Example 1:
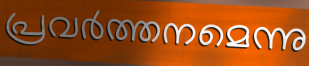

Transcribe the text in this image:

പ്രവർത്തനമെന്നു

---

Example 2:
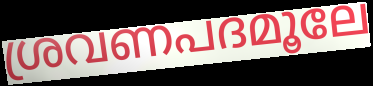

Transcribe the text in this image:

ശ്രവണപദമൂലേ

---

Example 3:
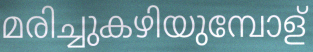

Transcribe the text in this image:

മരിച്ചുകഴിയുമ്പോള്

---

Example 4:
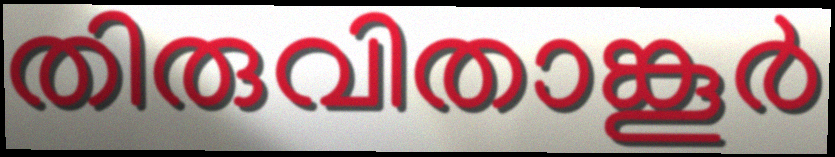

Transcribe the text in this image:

തിരുവിതാങ്കൂർ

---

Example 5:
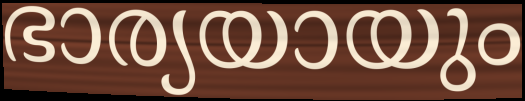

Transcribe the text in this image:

ഭാര്യയായും